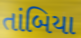
તાંબિયા